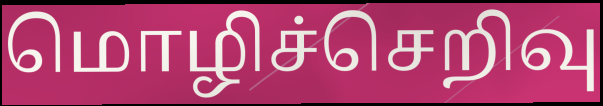
மொழிச்செறிவு